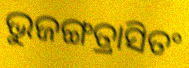
ଭୁଜଙ୍ଗତ୍ରାସିତଂ